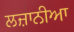
ਲਜ਼ਾਨੀਆ